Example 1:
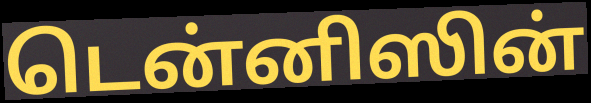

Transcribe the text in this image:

டென்னிஸின்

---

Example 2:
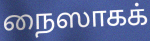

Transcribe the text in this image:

நைஸாகக்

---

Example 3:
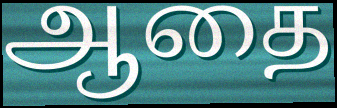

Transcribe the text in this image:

ஆதை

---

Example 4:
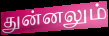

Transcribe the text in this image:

துன்னலும்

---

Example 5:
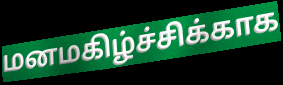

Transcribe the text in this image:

மனமகிழ்ச்சிக்காக